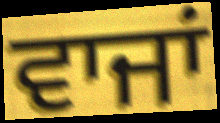
ਵਾਜਾਂ